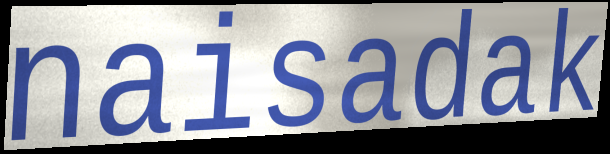
naisadak